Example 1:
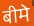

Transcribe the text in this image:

बीमे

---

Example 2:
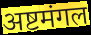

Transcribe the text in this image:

अष्टमंगल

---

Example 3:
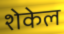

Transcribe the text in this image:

शेकेल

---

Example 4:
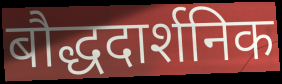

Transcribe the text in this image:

बौद्धदार्शनिक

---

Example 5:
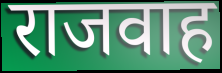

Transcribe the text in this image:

राजवाह